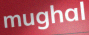
mughal